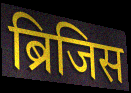
ब्रिजिस